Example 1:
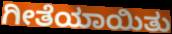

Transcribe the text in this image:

ಗೀತೆಯಾಯಿತು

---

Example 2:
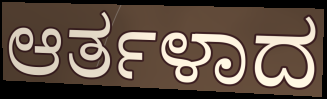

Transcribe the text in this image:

ಆರ್ತಳಾದ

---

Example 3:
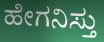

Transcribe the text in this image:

ಹೇಗನಿಸ್ತು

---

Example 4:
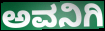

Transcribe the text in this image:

ಅವನಿಗಿ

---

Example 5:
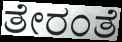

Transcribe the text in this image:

ತೇರಂತೆ